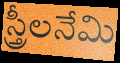
స్త్రీలనేమి